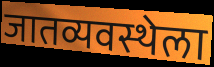
जातव्यवस्थेला